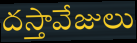
దస్తావేజులు